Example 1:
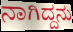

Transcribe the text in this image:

ನಾಗಿದ್ದನು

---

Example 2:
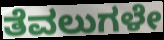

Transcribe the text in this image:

ತೆವಲುಗಳೇ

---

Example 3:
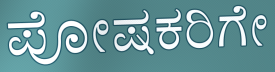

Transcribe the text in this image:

ಪೋಷಕರಿಗೇ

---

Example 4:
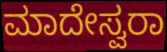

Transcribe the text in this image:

ಮಾದೇಸ್ವರಾ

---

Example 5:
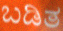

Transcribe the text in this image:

ಬಡಿತ